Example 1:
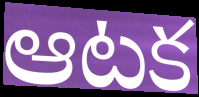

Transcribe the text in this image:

ఆటక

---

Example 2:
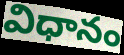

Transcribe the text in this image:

విధానం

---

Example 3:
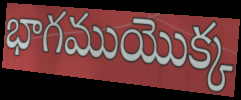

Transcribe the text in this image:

భాగముయొక్క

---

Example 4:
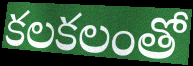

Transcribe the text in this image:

కలకలంతో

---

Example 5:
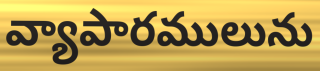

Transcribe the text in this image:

వ్యాపారములును